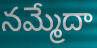
నమ్మేదా